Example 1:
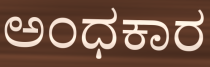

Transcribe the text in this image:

ಅಂಧಕಾರ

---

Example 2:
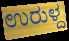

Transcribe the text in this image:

ಉರುಳ್ದ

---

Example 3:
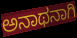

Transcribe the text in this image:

ಅನಾಥನಾಗಿ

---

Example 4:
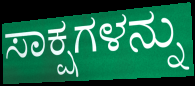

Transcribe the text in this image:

ಸಾಕ್ಷಗಳನ್ನು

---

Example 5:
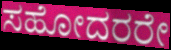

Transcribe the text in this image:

ಸಹೋದರರೇ